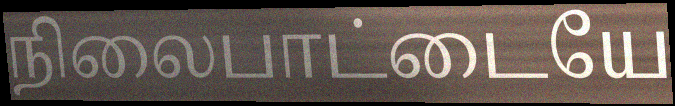
நிலைபாட்டையே